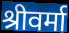
श्रीवर्मा